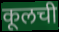
कूलची